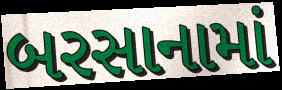
બરસાનામાં